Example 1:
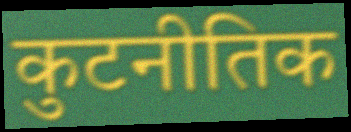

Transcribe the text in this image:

कुटनीतिक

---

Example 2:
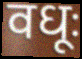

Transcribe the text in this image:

वधूः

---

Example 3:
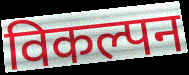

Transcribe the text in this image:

विकल्पन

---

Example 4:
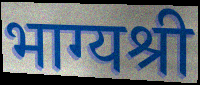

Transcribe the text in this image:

भाग्यश्री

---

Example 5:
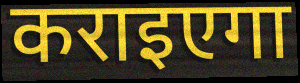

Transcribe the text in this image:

कराइएगा